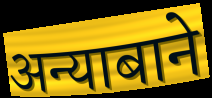
अन्याबाने